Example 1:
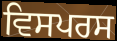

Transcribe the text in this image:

ਵਿਸਪਰਸ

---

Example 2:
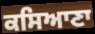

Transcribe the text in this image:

ਕਸਿਆਣਾ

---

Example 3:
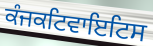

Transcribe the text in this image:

ਕੰਜਕਟਿਵਾਇਟਿਸ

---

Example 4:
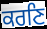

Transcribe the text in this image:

ਕਰਣਿ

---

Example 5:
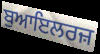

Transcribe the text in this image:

ਬੁਆਇਲਰਜ਼